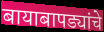
बायाबापड्यांचे